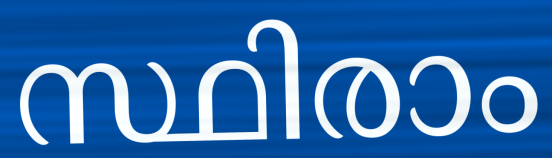
സ്ഥിരാം